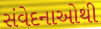
સંવેદનાઓથી